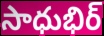
సాధుభిర్